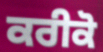
ਕਰੀਕੋ